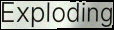
Exploding